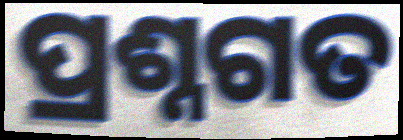
ପ୍ରଶ୍ନଗତ